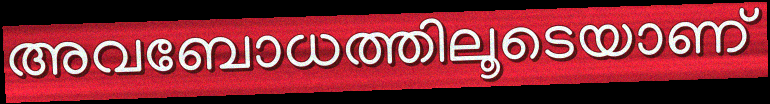
അവബോധത്തിലൂടെയാണ്